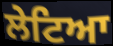
ਲੇਟਿਆ